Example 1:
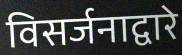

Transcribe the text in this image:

विसर्जनाद्वारे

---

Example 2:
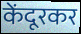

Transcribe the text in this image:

केंदूरकर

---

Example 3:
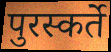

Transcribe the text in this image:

पुरस्कर्ते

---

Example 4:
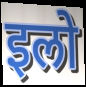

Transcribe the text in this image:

इलो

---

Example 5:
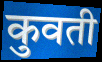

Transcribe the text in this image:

कुवती